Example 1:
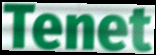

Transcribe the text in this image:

Tenet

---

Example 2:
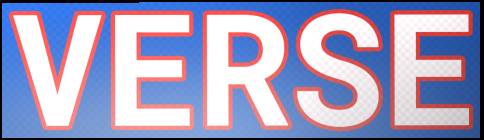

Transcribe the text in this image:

VERSE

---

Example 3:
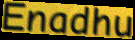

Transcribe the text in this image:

Enadhu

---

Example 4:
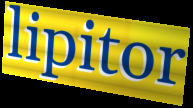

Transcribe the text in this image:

lipitor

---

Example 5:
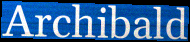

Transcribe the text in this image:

Archibald